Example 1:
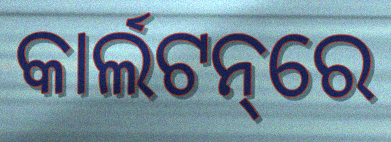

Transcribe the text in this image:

କାର୍ଲଟନ୍‌ରେ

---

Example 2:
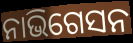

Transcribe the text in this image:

ନାଭିଗେସନ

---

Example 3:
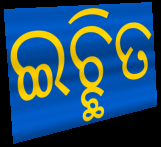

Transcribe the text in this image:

ଇଚ୍ଛିତ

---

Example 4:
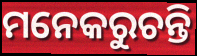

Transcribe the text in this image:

ମନେକରୁଚନ୍ତି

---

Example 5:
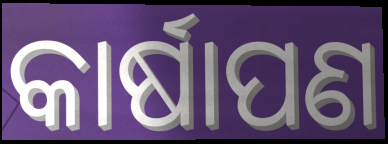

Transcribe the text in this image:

କାର୍ଷାପଣ